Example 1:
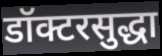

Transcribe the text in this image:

डॉक्टरसुद्धा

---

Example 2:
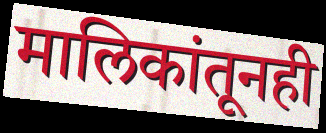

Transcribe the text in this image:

मालिकांतूनही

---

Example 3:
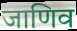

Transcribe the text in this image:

जाणिव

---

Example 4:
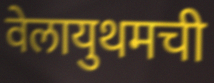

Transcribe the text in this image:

वेलायुथमची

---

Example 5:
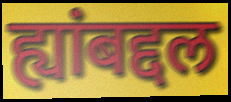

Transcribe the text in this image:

ह्यांबद्दल